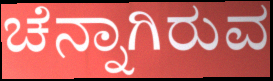
ಚೆನ್ನಾಗಿರುವ